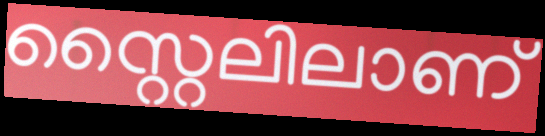
സ്റ്റൈലിലാണ്